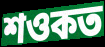
শওকত